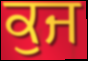
ਕੁਜ